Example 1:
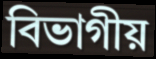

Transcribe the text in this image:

বিভাগীয়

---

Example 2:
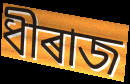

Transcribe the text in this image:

ধীৰাজ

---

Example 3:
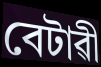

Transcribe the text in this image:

বেটাৱী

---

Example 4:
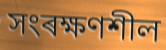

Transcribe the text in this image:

সংৰক্ষণশীল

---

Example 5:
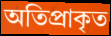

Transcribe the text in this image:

অতিপ্ৰাকৃত